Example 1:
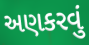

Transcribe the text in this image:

અણકરવું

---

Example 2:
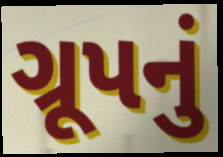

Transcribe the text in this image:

ગ્રૂપનું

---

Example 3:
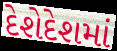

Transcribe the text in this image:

દેશેદેશમાં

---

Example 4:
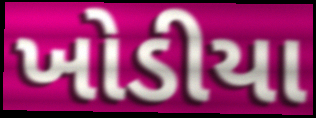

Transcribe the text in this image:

ખોડીયા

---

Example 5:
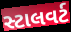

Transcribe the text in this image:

સ્ટાલવર્ટ